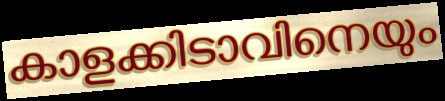
കാളക്കിടാവിനെയും